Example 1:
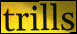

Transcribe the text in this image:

trills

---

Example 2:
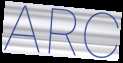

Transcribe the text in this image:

ARC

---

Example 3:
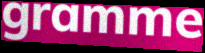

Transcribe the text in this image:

gramme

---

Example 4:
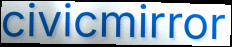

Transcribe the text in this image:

civicmirror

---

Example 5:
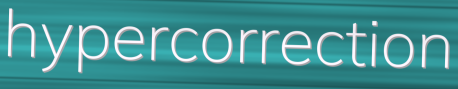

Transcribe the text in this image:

hypercorrection